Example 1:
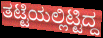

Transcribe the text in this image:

ತಟ್ಟೆಯಲ್ಲಿಟ್ಟಿದ್ದ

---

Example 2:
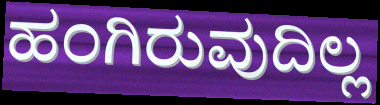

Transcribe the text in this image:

ಹಂಗಿರುವುದಿಲ್ಲ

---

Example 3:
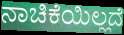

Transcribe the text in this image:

ನಾಚಿಕೆಯಿಲ್ಲದೆ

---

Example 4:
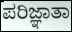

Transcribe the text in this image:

ಪರಿಜ್ಞಾತಾ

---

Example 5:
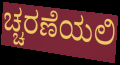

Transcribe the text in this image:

ಚ್ಚರಣೆಯಲಿ